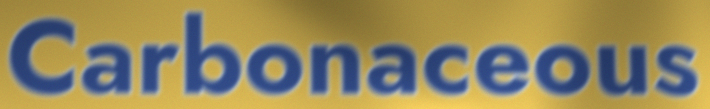
Carbonaceous